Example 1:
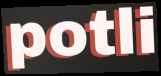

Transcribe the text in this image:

potli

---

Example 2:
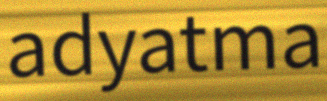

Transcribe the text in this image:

adyatma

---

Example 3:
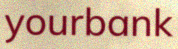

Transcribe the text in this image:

yourbank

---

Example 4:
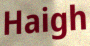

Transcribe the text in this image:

Haigh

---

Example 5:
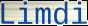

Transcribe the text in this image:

Limdi